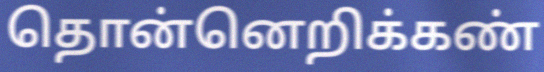
தொன்னெறிக்கண்